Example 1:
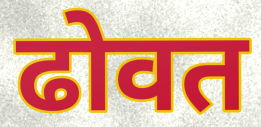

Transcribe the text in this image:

ढोवत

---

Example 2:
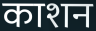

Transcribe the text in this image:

काशन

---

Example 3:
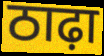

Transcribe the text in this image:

ठाढ़ा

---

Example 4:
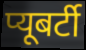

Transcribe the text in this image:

प्‍यूबर्टी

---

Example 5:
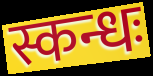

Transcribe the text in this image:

स्कन्धः